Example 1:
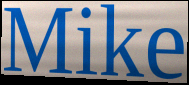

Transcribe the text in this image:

Mike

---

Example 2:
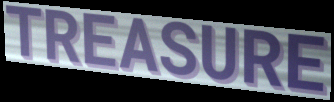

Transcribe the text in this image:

TREASURE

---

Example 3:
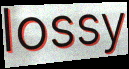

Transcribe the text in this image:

lossy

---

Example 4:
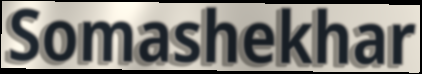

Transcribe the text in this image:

Somashekhar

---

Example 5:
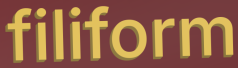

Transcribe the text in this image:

filiform